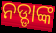
ନଡ୍ଡାଙ୍କ